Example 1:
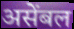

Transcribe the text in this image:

असेंबल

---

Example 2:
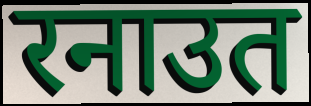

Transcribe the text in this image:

रनाउत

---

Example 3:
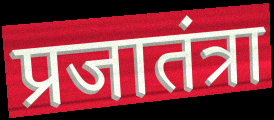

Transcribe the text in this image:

प्रजातंत्रा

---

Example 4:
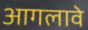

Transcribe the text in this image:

आगलावे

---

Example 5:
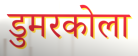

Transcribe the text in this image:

डुमरकोला